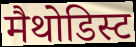
मैथोडिस्ट